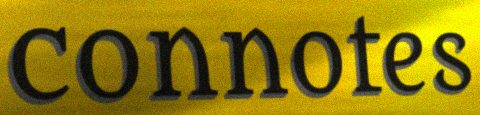
connotes